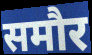
समौर